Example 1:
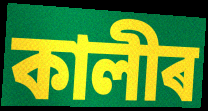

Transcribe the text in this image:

কালীৰ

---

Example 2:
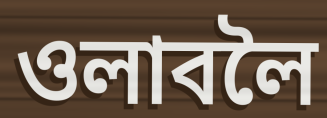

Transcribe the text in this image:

ওলাবলৈ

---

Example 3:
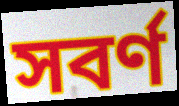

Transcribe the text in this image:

সবৰ্ণ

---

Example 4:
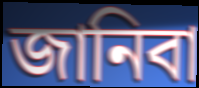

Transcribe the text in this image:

জানিবা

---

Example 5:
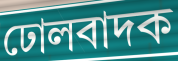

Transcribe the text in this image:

ঢোলবাদক